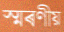
স্মৰণীয়